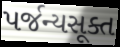
પર્જન્યસૂક્ત